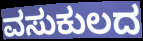
ವಸುಕುಲದ